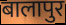
बालापुर